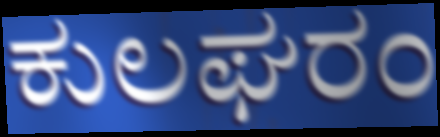
ಕುಲಘರಂ